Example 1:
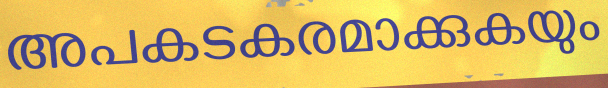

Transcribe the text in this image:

അപകടകരമാക്കുകയും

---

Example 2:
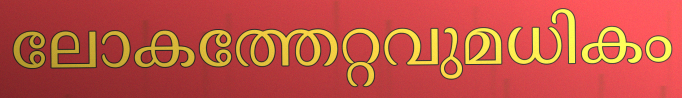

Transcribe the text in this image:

ലോകത്തേറ്റവുമധികം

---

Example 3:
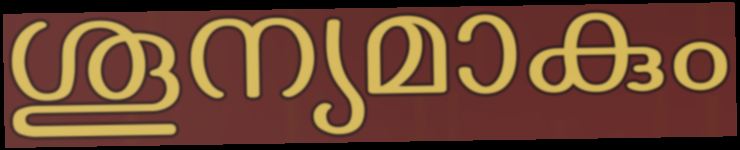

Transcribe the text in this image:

ശൂന്യമാകും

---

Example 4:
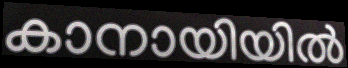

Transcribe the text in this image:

കാനായിയിൽ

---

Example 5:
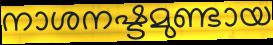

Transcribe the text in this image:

നാശനഷ്ടമുണ്ടായ